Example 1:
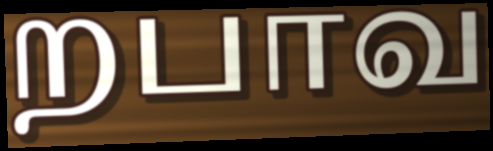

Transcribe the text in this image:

றபாவ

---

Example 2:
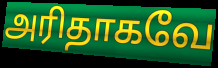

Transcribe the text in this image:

அரிதாகவே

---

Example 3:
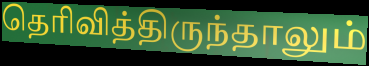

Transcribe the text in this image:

தெரிவித்திருந்தாலும்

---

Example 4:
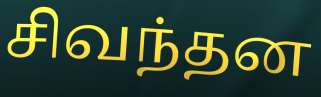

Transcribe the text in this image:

சிவந்தன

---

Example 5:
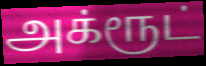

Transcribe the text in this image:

அக்ரூட்